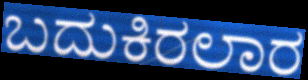
ಬದುಕಿರಲಾರ